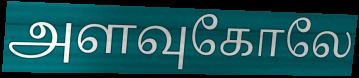
அளவுகோலே